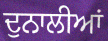
ਦੁਨਾਲੀਆਂ